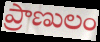
ప్రాణులం